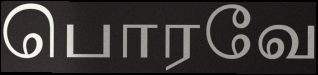
பொரவே